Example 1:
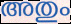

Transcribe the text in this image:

അതും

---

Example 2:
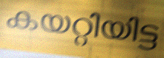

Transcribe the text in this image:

കയറ്റിയിട്ട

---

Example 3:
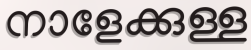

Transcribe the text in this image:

നാളേക്കുള്ള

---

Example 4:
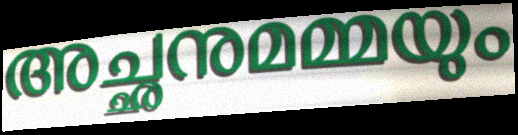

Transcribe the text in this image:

അച്ഛനുമമ്മയും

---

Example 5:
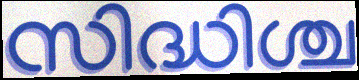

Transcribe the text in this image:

സിദ്ധിശ്ച